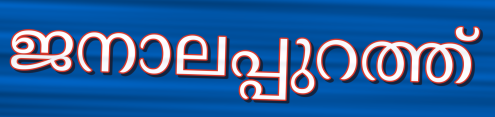
ജനാലപ്പുറത്ത്